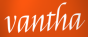
vantha